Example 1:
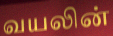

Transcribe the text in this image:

வயலின்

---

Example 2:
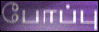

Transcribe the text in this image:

போப்பு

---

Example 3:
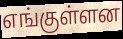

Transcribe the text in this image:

எங்குள்ளன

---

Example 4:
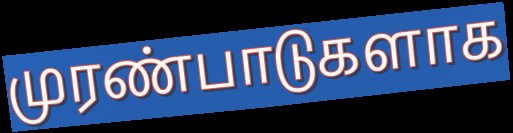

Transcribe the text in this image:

முரண்பாடுகளாக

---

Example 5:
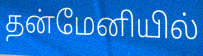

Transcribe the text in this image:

தன்மேனியில்